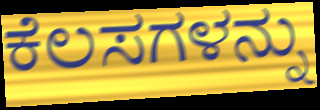
ಕೆಲಸಗಳನ್ನು